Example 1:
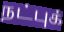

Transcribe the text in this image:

நட்புக்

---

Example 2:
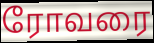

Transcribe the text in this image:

ரோவரை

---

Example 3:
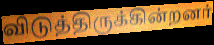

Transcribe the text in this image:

விடுத்திருக்கின்றனர்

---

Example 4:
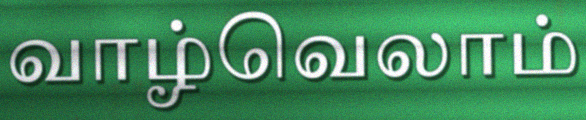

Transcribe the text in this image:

வாழ்வெலாம்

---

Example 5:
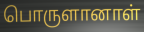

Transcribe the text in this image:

பொருளானாள்